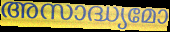
അസാദ്ധ്യമോ